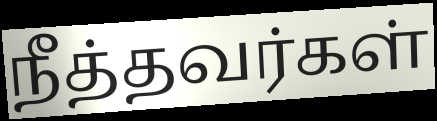
நீத்தவர்கள்